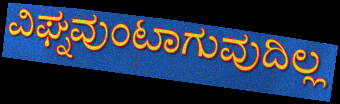
ವಿಘ್ನವುಂಟಾಗುವುದಿಲ್ಲ